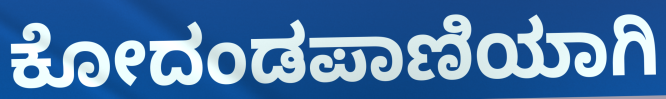
ಕೋದಂಡಪಾಣಿಯಾಗಿ